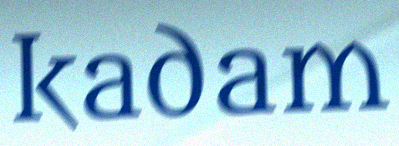
kadam